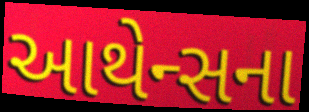
આથેન્સના